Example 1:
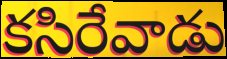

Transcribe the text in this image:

కసిరేవాడు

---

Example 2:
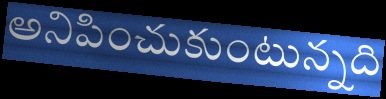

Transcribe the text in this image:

అనిపించుకుంటున్నది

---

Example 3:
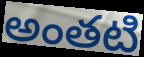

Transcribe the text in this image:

అంతటి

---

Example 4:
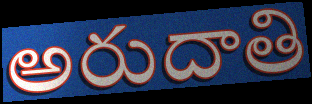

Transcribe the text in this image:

అరుదాతి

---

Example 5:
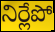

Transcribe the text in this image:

నిర్లేపో